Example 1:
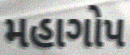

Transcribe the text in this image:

મહાગોપ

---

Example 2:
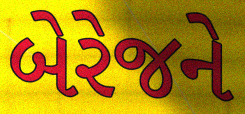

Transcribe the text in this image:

બેરેજને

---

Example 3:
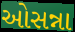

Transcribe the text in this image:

ઓસન્ના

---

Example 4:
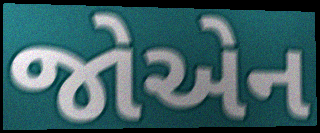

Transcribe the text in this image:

જોએન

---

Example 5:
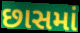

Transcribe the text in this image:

છાસમાં